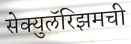
सेक्युलॅरिझमची